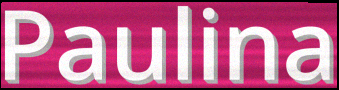
Paulina